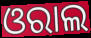
ଓରାଲ